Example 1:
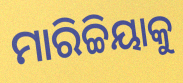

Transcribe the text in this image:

ମାରିଚ୍ଚିୟାକୁ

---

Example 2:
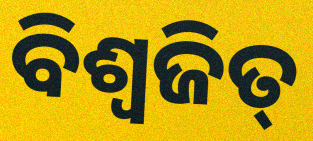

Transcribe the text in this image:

ବିଶ୍ୱଜିତ୍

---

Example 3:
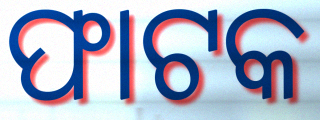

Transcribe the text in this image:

ଫାଟକ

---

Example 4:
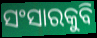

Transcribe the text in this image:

ସଂସାରକୁବି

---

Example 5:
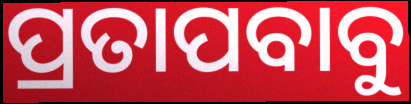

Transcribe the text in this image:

ପ୍ରତାପବାବୁ